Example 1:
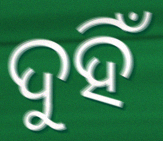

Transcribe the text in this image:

ଦୁହିଁ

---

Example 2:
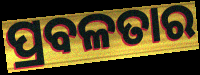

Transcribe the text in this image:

ପ୍ରବଳତାର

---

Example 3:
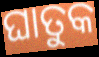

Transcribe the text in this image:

ଘାତୁକ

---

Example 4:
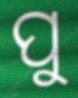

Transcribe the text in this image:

ପୁ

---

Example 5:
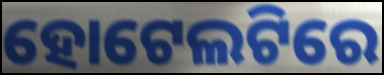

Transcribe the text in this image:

ହୋଟେଲଟିରେ